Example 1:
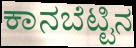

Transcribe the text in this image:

ಕಾನಬೆಟ್ಟಿನ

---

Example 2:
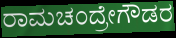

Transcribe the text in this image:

ರಾಮಚಂದ್ರೇಗೌಡರ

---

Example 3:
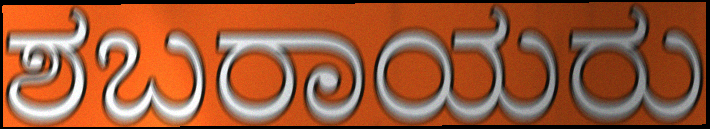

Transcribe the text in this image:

ಶಬರಾಯರು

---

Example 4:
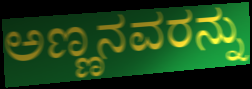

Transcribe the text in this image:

ಅಣ್ಣನವರನ್ನು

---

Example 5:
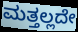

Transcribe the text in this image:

ಮತ್ತಲ್ಲದೇ